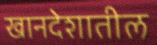
खानदेशातील